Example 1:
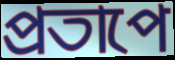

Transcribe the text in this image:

প্রতাপে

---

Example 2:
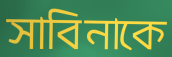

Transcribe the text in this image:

সাবিনাকে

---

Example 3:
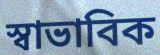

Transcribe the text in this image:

স্বাভাবিক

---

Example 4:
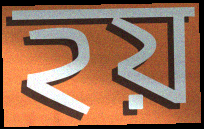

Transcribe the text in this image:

হয়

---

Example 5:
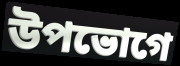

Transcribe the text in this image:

উপভোগে